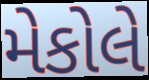
મેકોલે